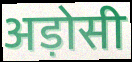
अड़ोसी